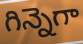
గిన్నెగా